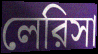
লেরিসা